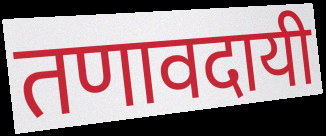
तणावदायी